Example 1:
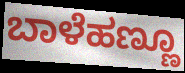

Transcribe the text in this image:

ಬಾಳೆಹಣ್ಣೂ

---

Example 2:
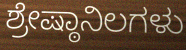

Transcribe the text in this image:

ಶ್ರೇಷ್ಠಾನಿಲಗಳು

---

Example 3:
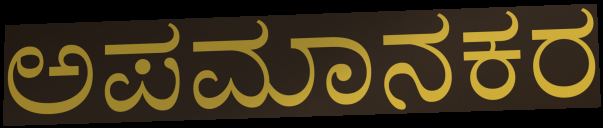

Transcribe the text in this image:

ಅಪಮಾನಕರ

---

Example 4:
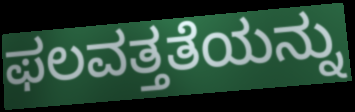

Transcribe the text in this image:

ಫಲವತ್ತತೆಯನ್ನು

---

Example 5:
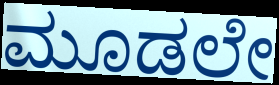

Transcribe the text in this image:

ಮೂಡಲೇ